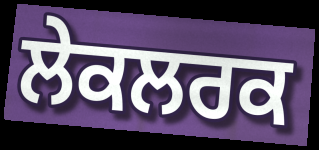
ਲੇਕਲਰਕ